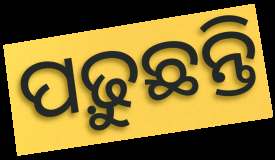
ପଢ଼ୁଛନ୍ତି